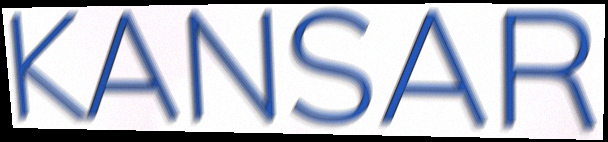
KANSAR